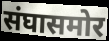
संघासमोर